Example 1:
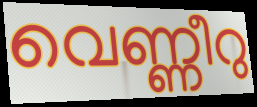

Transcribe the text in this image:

വെണ്ണീറു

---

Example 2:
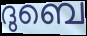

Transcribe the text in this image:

ദുബെ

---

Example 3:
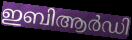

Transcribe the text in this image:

ഇബിആർഡി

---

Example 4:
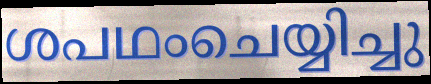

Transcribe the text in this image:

ശപഥംചെയ്യിച്ചു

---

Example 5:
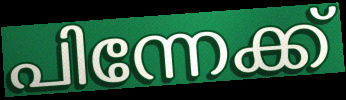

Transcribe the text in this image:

പിന്നേക്ക്